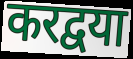
करद्वया